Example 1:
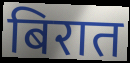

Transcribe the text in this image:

बिरात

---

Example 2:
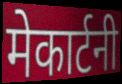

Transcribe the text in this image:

मेकार्टनी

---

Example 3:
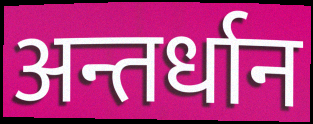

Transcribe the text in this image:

अन्तर्धान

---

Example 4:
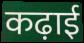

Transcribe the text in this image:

कढ़ाई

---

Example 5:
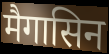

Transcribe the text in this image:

मैगासिन